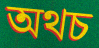
অথচ